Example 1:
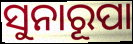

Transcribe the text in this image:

ସୁନାରୂପା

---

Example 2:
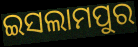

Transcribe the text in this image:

ଇସଲାମପୁର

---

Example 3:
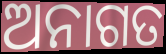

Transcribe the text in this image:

ଅନାଗତ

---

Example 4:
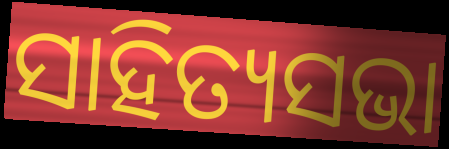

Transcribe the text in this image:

ସାହିତ୍ୟସଭା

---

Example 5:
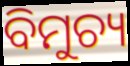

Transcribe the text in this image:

ବିମୁଚ୍ୟ